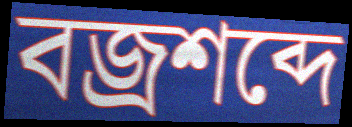
বজ্রশব্দে